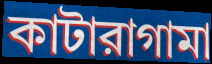
কাটারাগামা